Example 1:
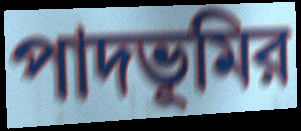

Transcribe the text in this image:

পাদভূমির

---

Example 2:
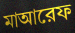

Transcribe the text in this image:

মাআরেফ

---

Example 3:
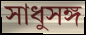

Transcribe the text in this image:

সাধুসঙ্গ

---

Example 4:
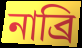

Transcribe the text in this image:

নাব্রি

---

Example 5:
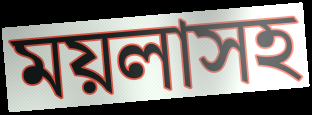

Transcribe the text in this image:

ময়লাসহ